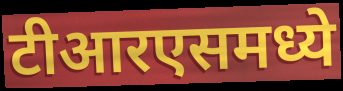
टीआरएसमध्ये